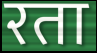
रता